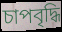
চাপবৃদ্ধি